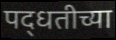
पद्धतीच्या